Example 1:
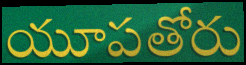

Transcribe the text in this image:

యూపతోరు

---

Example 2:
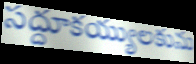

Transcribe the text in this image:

సద్దూకయ్యులకును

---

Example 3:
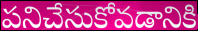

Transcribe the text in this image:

పనిచేసుకోవడానికి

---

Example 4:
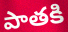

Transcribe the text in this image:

పాతకి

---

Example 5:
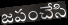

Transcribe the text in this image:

జపంచేసి